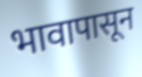
भावापासून